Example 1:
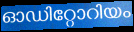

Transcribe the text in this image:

ഓഡിറ്റോറിയം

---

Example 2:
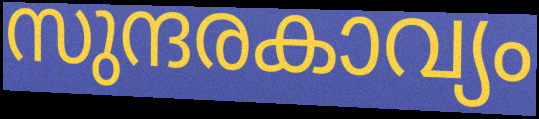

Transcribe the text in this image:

സുന്ദരകാവ്യം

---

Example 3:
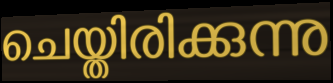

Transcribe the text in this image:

ചെയ്തിരിക്കുന്നു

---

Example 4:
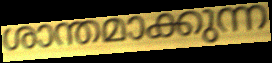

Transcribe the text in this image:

ശാന്തമാക്കുന്ന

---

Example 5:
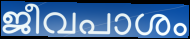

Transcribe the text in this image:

ജീവപാശം